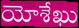
యోశేఖు